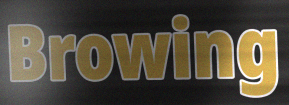
Browing